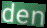
den